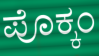
ಪೊಕ್ಕಂ